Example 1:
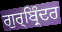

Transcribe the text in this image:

ਗੁਰ੍ਬ੍ਰਿੰਦਰ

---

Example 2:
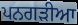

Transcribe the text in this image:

ਪਨਗੜੀਆ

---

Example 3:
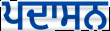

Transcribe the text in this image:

ਪਦਾਸਨ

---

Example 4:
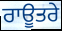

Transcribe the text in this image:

ਰਾਊਤਰੇ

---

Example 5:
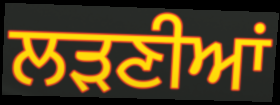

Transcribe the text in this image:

ਲੜਣੀਆਂ